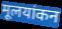
मूलयांकन